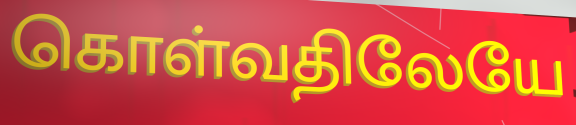
கொள்வதிலேயே